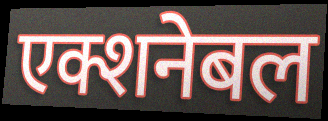
एक्शनेबल